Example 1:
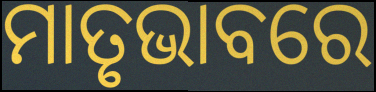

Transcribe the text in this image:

ମାତୃଭାବରେ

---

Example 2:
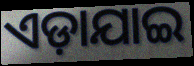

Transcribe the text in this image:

ଏଡ଼ାଯାଇ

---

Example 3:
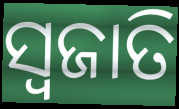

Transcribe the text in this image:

ସ୍ୱଜାତି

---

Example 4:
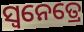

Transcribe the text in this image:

ସ୍ୱନେତ୍ରେ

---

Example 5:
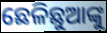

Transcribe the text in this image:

ଛେଳିଛୁଆଙ୍କୁ